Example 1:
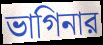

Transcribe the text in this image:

ভাগিনার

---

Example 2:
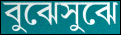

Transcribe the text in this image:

বুঝেসুঝে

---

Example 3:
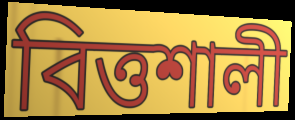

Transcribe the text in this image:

বিত্তশালী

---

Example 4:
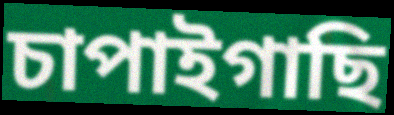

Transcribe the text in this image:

চাপাইগাছি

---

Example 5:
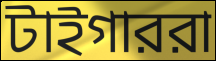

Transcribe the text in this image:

টাইগাররা